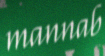
mannab